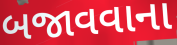
બજાવવાના